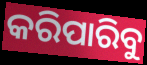
କରିପାରିବୁ